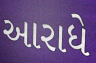
આરાધે